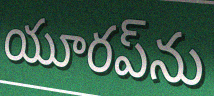
యూరప్‌ను